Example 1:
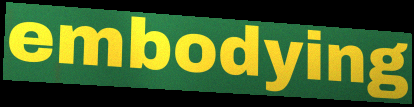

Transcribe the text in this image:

embodying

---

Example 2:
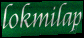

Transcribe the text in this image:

lokmilap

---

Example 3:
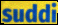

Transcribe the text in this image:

suddi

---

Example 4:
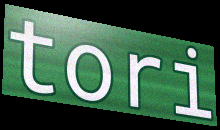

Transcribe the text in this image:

tori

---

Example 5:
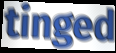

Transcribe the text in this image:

tinged